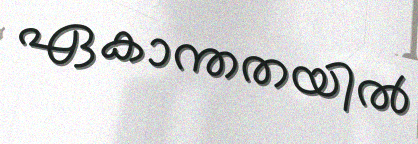
ഏകാന്തതയിൽ